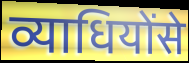
व्याधियोंसे